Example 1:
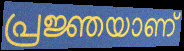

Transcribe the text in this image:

പ്രജ്ഞയാണ്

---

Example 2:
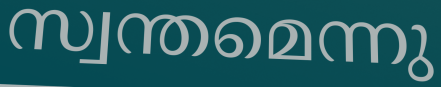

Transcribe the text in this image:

സ്വന്തമെന്നു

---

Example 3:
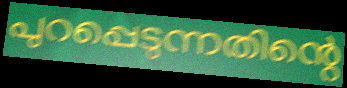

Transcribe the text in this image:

പുറപ്പെടുന്നതിന്റെ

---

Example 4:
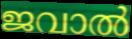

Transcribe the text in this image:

ജവാൽ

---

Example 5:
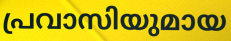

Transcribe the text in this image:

പ്രവാസിയുമായ